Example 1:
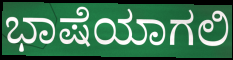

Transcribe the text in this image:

ಭಾಷೆಯಾಗಲಿ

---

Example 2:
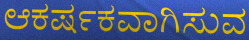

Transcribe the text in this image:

ಆಕರ್ಷಕವಾಗಿಸುವ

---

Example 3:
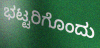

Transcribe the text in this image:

ಭಟ್ಟರಿಗೊಂದು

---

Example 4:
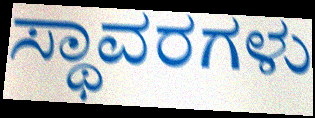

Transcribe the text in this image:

ಸ್ಥಾವರಗಳು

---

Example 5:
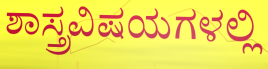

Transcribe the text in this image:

ಶಾಸ್ತ್ರವಿಷಯಗಳಲ್ಲಿ